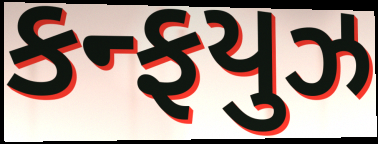
કન્ફયુઝ